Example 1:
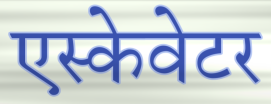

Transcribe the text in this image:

एस्केवेटर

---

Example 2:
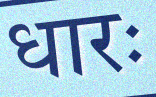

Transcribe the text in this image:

धारः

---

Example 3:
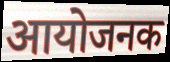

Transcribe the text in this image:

आयोजनक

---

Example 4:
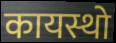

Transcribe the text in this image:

कायस्थो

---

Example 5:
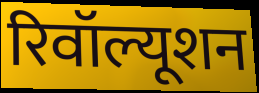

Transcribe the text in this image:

रिवॉल्यूशन